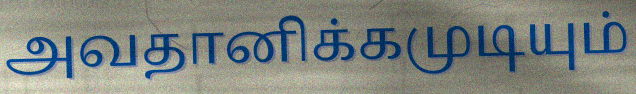
அவதானிக்கமுடியும்